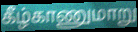
கீழ்காணுமாறு